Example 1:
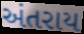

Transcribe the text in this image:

અંતરાય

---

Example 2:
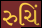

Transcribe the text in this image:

રુચિં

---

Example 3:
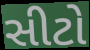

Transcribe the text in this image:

સીટો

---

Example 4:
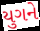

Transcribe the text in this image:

યુગને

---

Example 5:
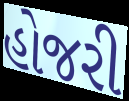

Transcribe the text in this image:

હોજરી